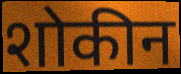
शोकीन